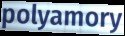
polyamory